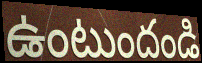
ఉంటుందండి